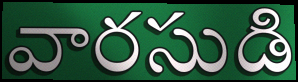
వారసుడి